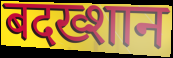
बदख्शान